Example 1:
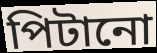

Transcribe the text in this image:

পিটানো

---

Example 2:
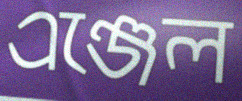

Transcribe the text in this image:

এঞ্জেল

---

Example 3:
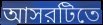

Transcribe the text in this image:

আসরটিতে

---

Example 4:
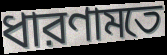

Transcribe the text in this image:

ধারণামতে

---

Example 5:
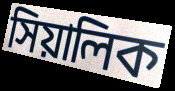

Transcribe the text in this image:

সিয়ালিক